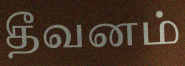
தீவனம்